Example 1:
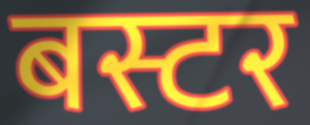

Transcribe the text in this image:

बस्टर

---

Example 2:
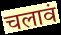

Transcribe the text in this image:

चलावं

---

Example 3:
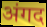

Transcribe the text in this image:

अंगद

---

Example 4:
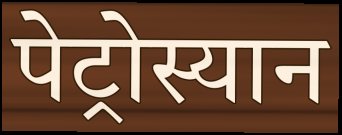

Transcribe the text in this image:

पेट्रोस्यान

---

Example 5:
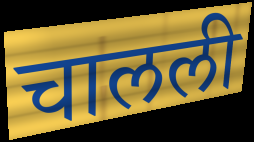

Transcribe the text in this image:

चालली